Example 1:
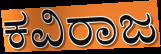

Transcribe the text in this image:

ಕವಿರಾಜ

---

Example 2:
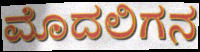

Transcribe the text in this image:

ಮೊದಲಿಗನ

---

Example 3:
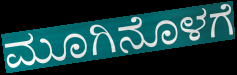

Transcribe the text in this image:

ಮೂಗಿನೊಳಗೆ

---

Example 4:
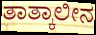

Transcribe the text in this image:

ತಾತ್ಕಾಲೀನ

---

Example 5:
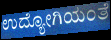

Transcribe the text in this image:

ಉದ್ಯೋಗಿಯಂತೆ